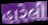
હારેલી